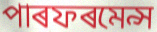
পাৰফৰমেন্স